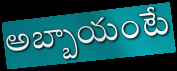
అబ్బాయంటే